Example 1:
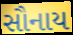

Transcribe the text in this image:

સૌનાય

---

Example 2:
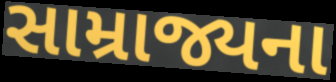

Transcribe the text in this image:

સામ્રાજ્યના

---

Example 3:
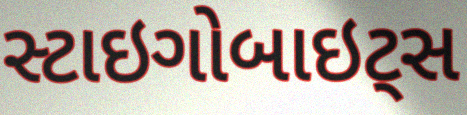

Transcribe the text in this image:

સ્ટાઇગોબાઇટ્સ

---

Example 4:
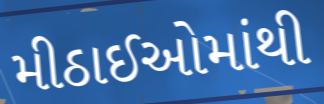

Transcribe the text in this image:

મીઠાઈઓમાંથી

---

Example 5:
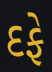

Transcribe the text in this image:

દફે